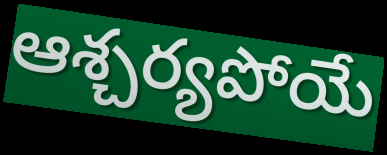
ఆశ్చర్యపోయే